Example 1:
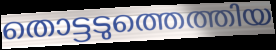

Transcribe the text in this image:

തൊട്ടടുത്തെത്തിയ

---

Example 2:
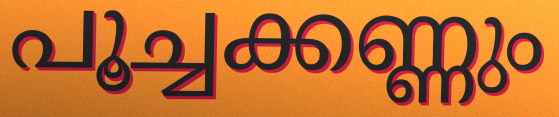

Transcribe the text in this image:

പൂച്ചക്കണ്ണും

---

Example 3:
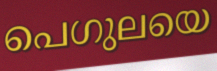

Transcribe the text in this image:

പെഗുലയെ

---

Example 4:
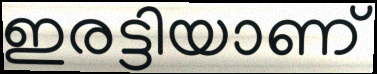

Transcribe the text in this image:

ഇരട്ടിയാണ്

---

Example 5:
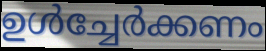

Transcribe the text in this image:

ഉൾച്ചേർക്കണം